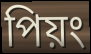
পিয়ং